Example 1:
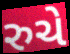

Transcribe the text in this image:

રુચે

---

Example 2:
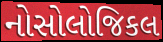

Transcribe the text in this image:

નોસોલોજિકલ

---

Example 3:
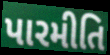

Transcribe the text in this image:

પારમીતિ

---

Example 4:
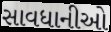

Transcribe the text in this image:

સાવધાનીઓ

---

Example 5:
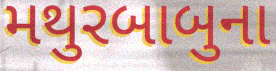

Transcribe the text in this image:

મથુરબાબુના